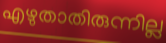
എഴുതാതിരുന്നില്ല